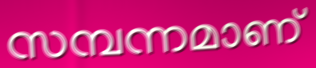
സമ്പന്നമാണ്